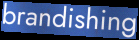
brandishing